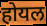
होयल